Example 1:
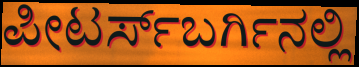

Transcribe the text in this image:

ಪೀಟರ್ಸ್‍ಬರ್ಗಿನಲ್ಲಿ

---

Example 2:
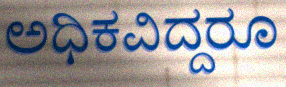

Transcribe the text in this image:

ಅಧಿಕವಿದ್ದರೂ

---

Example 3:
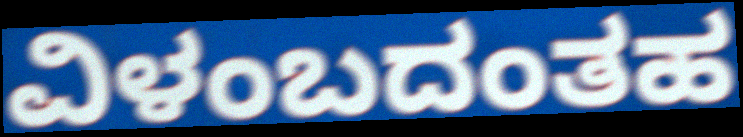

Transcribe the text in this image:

ವಿಳಂಬದಂತಹ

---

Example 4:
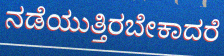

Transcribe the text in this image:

ನಡೆಯುತ್ತಿರಬೇಕಾದರೆ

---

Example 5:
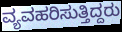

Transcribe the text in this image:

ವ್ಯವಹರಿಸುತ್ತಿದ್ದರು